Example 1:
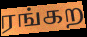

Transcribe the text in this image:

ரங்கற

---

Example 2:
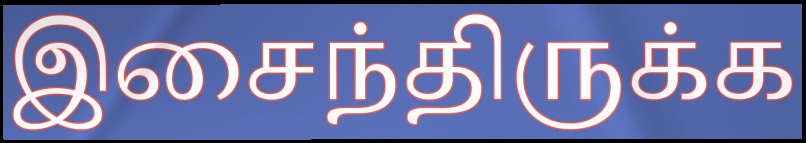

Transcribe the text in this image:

இசைந்திருக்க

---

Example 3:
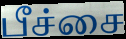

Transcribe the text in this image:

பீச்சை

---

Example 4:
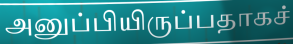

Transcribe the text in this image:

அனுப்பியிருப்பதாகச்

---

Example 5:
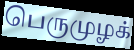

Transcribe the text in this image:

பெருமுழக்